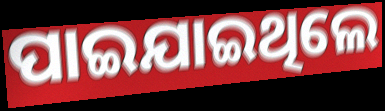
ପାଇଯାଇଥିଲେ